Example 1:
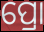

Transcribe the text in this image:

ପ୍ରୋ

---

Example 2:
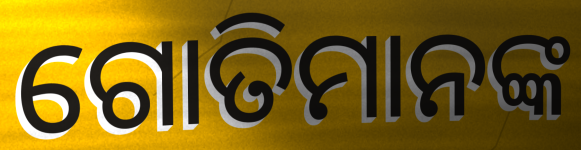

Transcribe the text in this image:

ଗୋତିମାନଙ୍କ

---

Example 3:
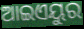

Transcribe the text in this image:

ଆଇଏୟୁର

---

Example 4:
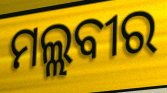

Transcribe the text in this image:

ମଲ୍ଲବୀର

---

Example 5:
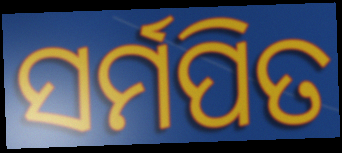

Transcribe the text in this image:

ସର୍ମପିତ